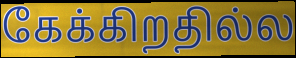
கேக்கிறதில்ல